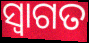
ସ୍ୱାଗତ